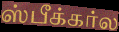
ஸ்பீக்கர்ல